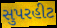
સુપરહીટ